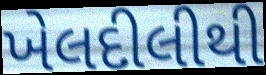
ખેલદીલીથી